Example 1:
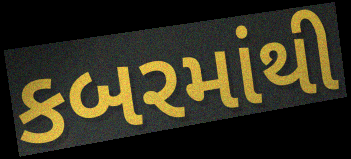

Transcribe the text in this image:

કબરમાંથી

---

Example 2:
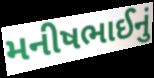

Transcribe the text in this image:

મનીષભાઈનું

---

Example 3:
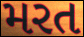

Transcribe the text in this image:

મરત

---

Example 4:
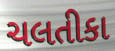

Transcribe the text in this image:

ચલતીકા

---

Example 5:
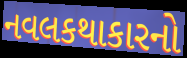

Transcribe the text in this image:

નવલકથાકારનો